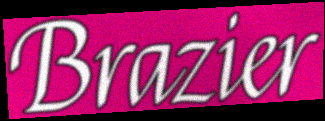
Brazier